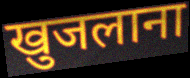
खुजलाना